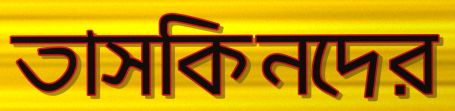
তাসকিনদের